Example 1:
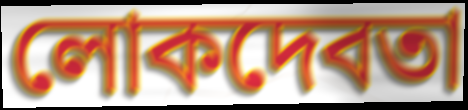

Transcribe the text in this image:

লোকদেবতা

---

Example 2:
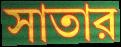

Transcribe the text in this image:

সাতার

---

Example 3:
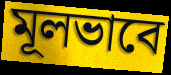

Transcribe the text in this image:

মূলভাবে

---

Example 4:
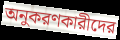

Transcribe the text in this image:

অনুকরণকারীদের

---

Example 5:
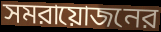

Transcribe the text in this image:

সমরায়োজনের